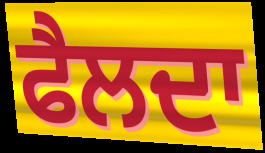
ਫੈਲਦਾ